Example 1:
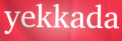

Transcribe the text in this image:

yekkada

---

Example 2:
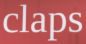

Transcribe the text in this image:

claps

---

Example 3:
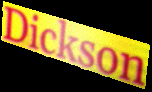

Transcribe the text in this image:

Dickson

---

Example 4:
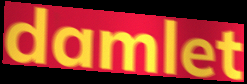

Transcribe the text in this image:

damlet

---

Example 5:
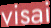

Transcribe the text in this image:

visai